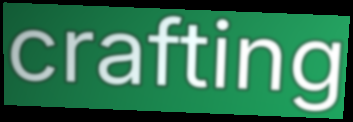
crafting